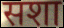
सशा